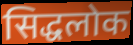
सिद्धलोक